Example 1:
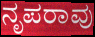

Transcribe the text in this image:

ನೃಪರಾವು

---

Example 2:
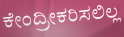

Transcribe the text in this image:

ಕೇಂದ್ರೀಕರಿಸಲಿಲ್ಲ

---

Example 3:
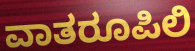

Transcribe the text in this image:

ವಾತರೂಪಿಲಿ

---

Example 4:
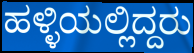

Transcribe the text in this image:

ಹಳ್ಳಿಯಲ್ಲಿದ್ದರು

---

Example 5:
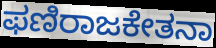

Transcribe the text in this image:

ಫಣಿರಾಜಕೇತನಾ